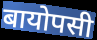
बायोपसी